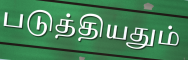
படுத்தியதும்